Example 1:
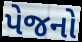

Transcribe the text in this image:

પેજનો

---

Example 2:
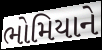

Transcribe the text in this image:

ભોમિયાને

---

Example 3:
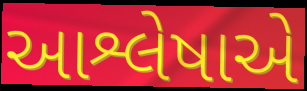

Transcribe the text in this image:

આશ્લેષાએ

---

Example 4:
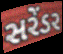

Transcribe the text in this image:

સરેંડર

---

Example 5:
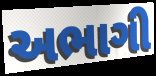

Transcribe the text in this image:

અભાગી